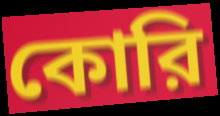
কোরি